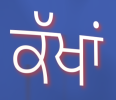
ਕੱਖਾਂ